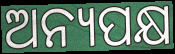
ଅନ୍ୟପକ୍ଷ